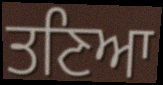
ਤਣਿਆ